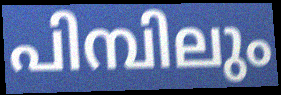
പിമ്പിലും